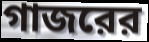
গাজরের